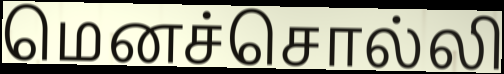
மெனச்சொல்லி